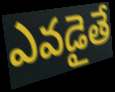
ఎవడైతే